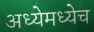
अध्येमध्येच